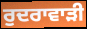
ਰੁਦਰਾਵਾੜੀ